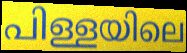
പിള്ളയിലെ